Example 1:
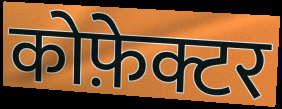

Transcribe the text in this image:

कोफ़ेक्टर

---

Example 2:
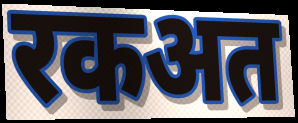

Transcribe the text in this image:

रकअत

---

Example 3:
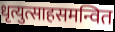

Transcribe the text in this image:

धृत्युत्साहसमन्वित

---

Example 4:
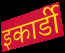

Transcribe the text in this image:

इकार्डी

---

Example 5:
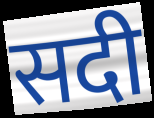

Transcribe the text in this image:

सदी